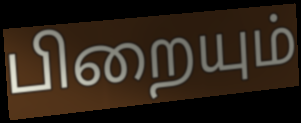
பிறையும்